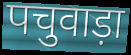
पचुवाड़ा